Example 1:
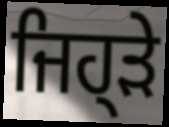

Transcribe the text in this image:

ਜਿਹ੍ੜੇ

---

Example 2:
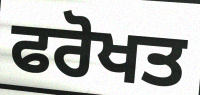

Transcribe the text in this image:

ਫਰੋਖਤ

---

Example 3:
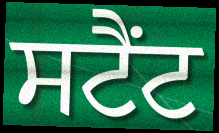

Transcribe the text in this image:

ਸਟੈਂਟ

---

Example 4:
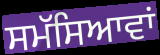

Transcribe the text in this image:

ਸਮੱਸਿਆਵਾਂ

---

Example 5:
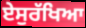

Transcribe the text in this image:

ਏਸੁਰੱਖਿਆ